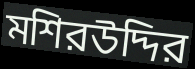
মশিরউদ্দির